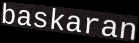
baskaran